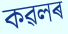
কৱলৰ